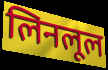
लिनलूल